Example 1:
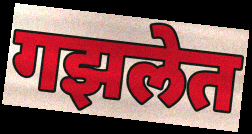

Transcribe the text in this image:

गझलेत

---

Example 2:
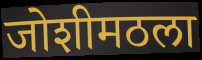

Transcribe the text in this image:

जोशीमठला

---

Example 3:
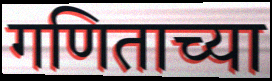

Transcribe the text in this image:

गणिताच्या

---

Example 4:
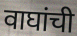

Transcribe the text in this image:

वाघांची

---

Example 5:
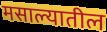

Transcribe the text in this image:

मसाल्यातील